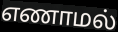
எணாமல்